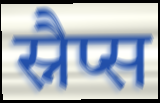
स्नैप्स